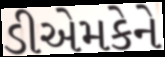
ડીએમકેને